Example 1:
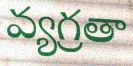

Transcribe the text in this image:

వ్యగ్రతా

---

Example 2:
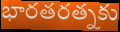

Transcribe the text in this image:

భారతరత్నకు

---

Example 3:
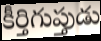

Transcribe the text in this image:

కీర్తిగుప్తుడు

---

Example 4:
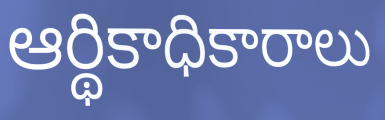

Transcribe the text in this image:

ఆర్థికాధికారాలు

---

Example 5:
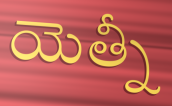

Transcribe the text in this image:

యెత్నీ